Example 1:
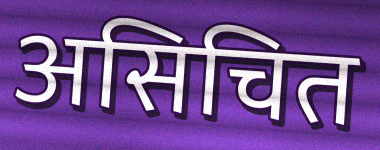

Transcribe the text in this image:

असिचित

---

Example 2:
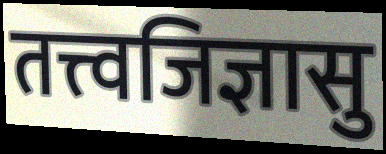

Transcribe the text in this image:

तत्त्वजिज्ञासु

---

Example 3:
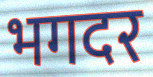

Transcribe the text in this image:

भगदर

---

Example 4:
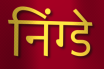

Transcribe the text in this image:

निंग्डे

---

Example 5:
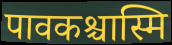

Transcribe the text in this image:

पावकश्चास्मि